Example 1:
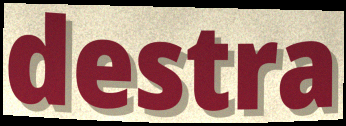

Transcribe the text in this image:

destra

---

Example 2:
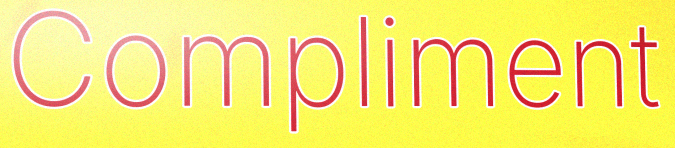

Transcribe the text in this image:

Compliment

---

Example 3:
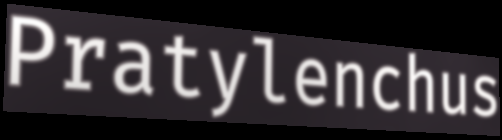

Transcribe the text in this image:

Pratylenchus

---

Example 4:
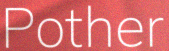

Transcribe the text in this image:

Pother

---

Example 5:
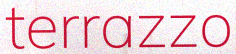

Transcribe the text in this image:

terrazzo